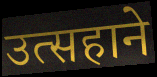
उत्सहाने